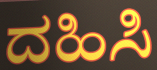
ದಹಿಸಿ